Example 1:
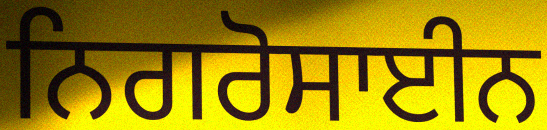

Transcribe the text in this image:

ਨਿਗਰੋਸਾਈਨ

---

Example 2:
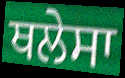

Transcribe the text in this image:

ਥਲੇਸਾ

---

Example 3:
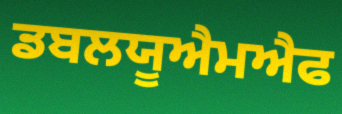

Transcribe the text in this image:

ਡਬਲਯੂਐਮਐਫ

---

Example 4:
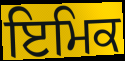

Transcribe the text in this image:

ਇਮਿਕ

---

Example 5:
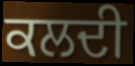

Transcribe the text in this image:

ਕਲਦੀ